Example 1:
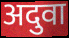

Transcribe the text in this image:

अदुवा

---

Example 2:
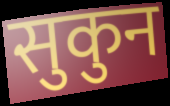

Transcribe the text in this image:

सुकुन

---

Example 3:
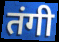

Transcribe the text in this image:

तंगी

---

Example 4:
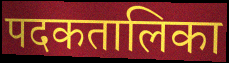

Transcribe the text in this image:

पदकतालिका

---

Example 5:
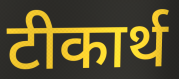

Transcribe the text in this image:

टीकार्थ